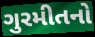
ગુરમીતનો